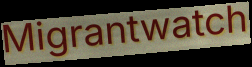
Migrantwatch